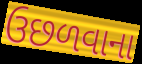
ઉછળવાના